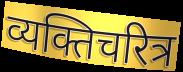
व्यक्तिचरित्र